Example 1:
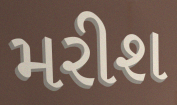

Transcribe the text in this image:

મરીશ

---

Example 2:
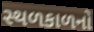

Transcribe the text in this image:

સ્થળકાળનો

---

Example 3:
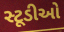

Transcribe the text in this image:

સ્ટૂડીઓ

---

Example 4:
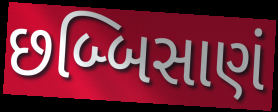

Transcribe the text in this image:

છબ્બિસાણં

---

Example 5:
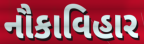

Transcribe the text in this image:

નૌકાવિહાર